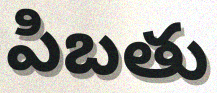
పిబతు